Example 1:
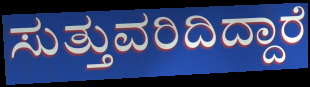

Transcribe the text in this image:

ಸುತ್ತುವರಿದಿದ್ದಾರೆ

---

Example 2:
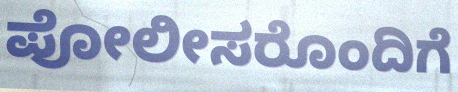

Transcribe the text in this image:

ಪೋಲೀಸರೊಂದಿಗೆ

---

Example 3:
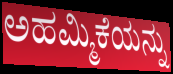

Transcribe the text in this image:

ಅಹಮ್ಮಿಕೆಯನ್ನು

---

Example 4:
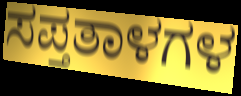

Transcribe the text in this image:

ಸಪ್ತತಾಳಗಳ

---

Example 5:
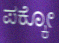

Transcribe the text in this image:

ಪಕ್ಕೋ